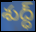
శుద్ధ్